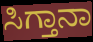
ಸಿಗ್ತಾನಾ